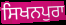
ਸਿਖਨਪੁਰਾ